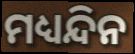
ମଧ୍ୟନ୍ଦିନ